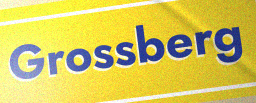
Grossberg